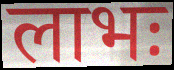
लाभः